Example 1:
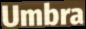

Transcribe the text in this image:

Umbra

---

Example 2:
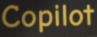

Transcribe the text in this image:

Copilot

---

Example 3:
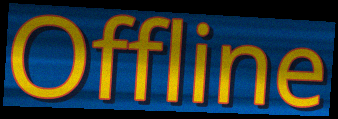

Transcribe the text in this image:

Offline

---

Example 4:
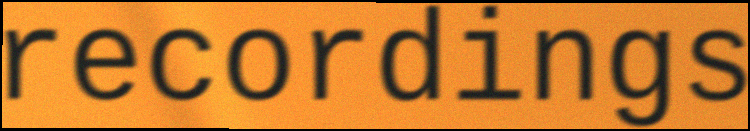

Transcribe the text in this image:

recordings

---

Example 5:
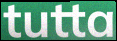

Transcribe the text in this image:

tutta